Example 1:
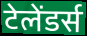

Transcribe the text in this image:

टेलेंडर्स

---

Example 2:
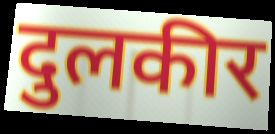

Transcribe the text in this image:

दुलकीर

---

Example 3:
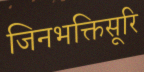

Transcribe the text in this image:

जिनभक्तिसूरि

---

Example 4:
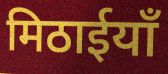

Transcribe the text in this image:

मिठाईयाँ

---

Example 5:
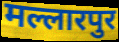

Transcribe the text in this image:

मल्लारपुर